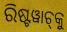
ରିଷ୍ଟୱାଚ୍‌କୁ